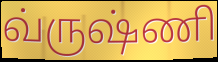
வ்ருஷ்ணி